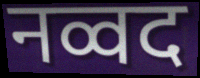
नव्वद